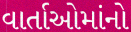
વાર્તાઓમાંનો